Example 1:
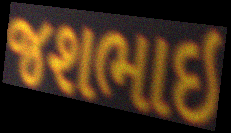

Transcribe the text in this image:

જશભાઇ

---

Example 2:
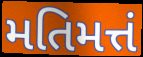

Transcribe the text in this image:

મતિમત્તં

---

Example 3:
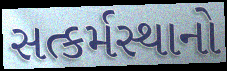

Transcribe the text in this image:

સત્કર્મસ્થાનો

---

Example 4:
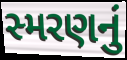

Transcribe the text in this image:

સ્મરણનું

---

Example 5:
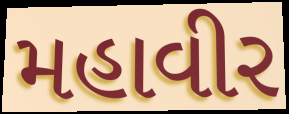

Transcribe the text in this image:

મહાવીર